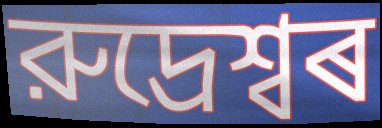
ৰুদ্ৰেশ্বৰ